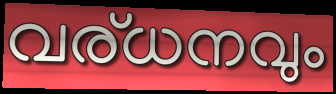
വര്ധനവും